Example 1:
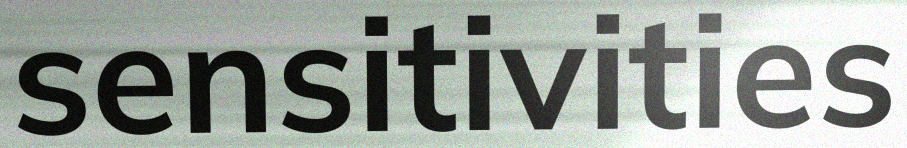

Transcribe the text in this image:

sensitivities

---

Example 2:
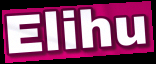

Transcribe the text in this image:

Elihu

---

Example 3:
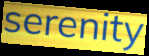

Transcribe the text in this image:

serenity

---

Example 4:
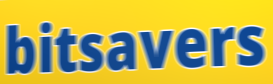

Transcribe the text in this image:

bitsavers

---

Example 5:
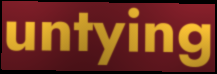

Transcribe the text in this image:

untying